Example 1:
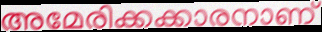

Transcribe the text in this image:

അമേരിക്കക്കാരനാണ്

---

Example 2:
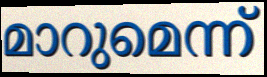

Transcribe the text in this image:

മാറുമെന്ന്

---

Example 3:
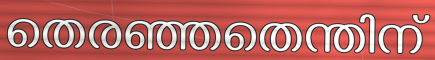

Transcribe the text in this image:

തെരഞ്ഞതെന്തിന്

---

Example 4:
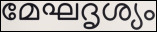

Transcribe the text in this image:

മേഘദൃശ്യം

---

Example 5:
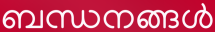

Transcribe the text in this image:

ബന്ധനങ്ങൾ